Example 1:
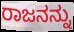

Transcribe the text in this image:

ರಾಜನನ್ನು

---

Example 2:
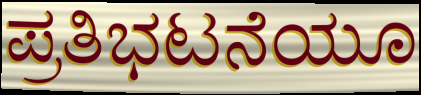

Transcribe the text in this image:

ಪ್ರತಿಭಟನೆಯೂ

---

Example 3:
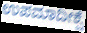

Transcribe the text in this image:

ಉಪಮಾದೀಕ್ಷೆ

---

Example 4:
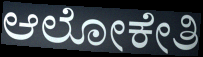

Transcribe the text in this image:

ಆಲೋಕೇತಿ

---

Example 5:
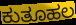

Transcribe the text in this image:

ಕುತೂಹಲ